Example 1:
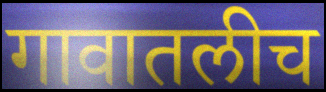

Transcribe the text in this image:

गावातलीच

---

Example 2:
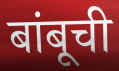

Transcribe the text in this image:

बांबूची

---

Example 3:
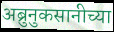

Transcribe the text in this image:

अब्रुनुकसानीच्या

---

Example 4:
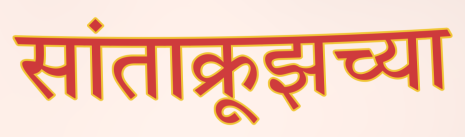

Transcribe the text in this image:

सांताक्रूझच्या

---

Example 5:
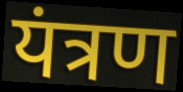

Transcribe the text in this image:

यंत्रण